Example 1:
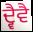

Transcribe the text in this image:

ਦ੍ਵੈਵੈ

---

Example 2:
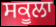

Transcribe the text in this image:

ਸਕੂਲਾ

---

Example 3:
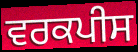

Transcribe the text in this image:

ਵਰਕਪੀਸ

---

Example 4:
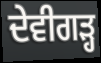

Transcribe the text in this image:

ਦੇਵੀਗੜ੍ਹ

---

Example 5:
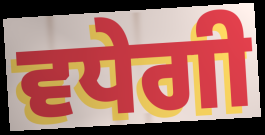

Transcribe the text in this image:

ਵਧੇਗੀ